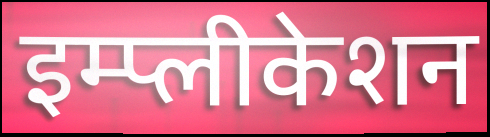
इम्प्लीकेशन